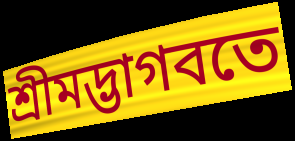
শ্রীমদ্ভাগবতে